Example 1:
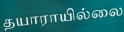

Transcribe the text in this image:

தயாராயில்லை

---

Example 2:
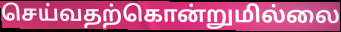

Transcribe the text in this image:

செய்வதற்கொன்றுமில்லை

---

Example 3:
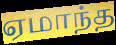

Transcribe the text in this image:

ஏமாந்த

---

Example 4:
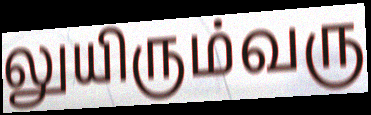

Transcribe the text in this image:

லுயிரும்வரு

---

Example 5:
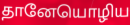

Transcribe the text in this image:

தானேயொழிய